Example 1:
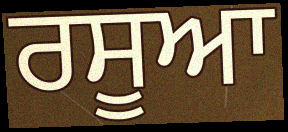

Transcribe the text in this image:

ਰਸੂਆ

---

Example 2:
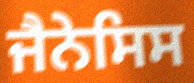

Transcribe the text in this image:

ਜੈਨੇਸਿਸ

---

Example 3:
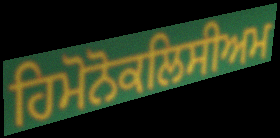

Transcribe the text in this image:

ਹਿਮੋਨੋਕਲਿਸੀਅਮ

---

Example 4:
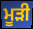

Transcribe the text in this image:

ਮੂੜੀ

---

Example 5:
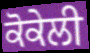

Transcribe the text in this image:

ਕੋਕੇਲੀ